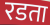
रडता